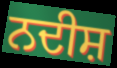
ਨਦੀਸ਼